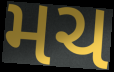
મચ